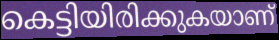
കെട്ടിയിരിക്കുകയാണ്